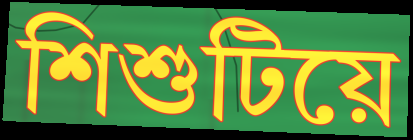
শিশুটিয়ে